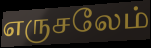
எருசலேம்